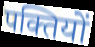
पक्तियों